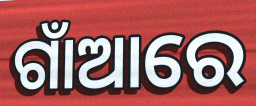
ଗାଁଆରେ